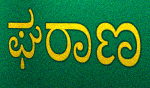
ಘರಾಣ